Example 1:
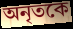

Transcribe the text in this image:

অনৃতকে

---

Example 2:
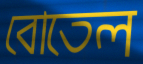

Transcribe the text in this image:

বোতেল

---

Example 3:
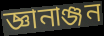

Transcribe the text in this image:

জ্ঞানাঞ্জন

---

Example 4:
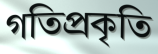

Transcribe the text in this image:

গতিপ্রকৃতি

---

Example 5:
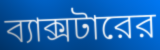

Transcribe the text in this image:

ব্যাক্সটারের